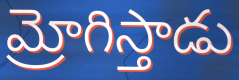
మ్రోగిస్తాడు